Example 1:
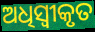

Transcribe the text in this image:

ଅଧିସ୍ୱୀକୃତ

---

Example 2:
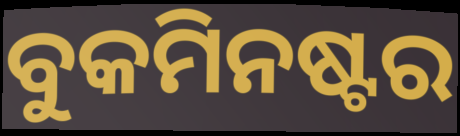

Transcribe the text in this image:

ବୁକମିନଷ୍ଟର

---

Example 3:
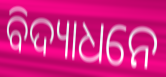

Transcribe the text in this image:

ବିଦ୍ୟାଧନେ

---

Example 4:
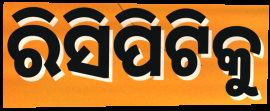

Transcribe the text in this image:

ରିସିପିଟିକୁ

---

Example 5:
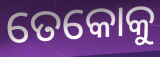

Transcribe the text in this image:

ତେକୋକୁ